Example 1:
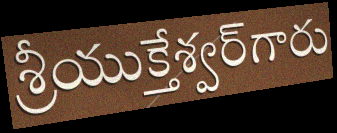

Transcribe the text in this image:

శ్రీయుక్తేశ్వర్‌గారు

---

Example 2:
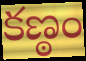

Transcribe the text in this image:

కణ్ఠం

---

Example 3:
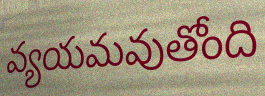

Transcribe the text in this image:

వ్యయమవుతోంది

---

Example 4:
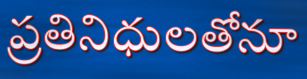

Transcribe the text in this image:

ప్రతినిధులతోనూ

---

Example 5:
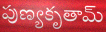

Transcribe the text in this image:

పుణ్యకృతామ్